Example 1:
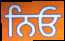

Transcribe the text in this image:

ਨਿਓ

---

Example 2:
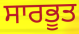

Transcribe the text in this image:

ਸਾਰਭੂਤ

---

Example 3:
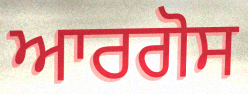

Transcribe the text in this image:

ਆਰਗੋਸ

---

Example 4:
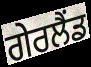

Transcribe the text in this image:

ਗੇਰਲੈਂਡ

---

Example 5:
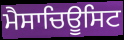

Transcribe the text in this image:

ਮੈਸਾਚਿਊਸਿਟ